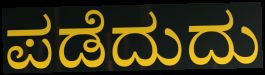
ಪಡೆದುದು